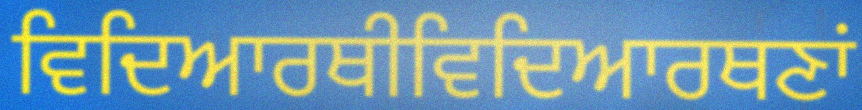
ਵਿਦਿਆਰਥੀਵਿਦਿਆਰਥਣਾਂ